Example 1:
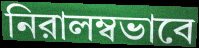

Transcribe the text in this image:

নিরালম্বভাবে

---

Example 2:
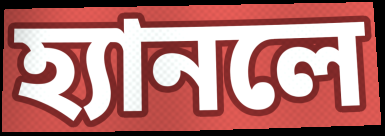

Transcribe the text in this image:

হ্যানলে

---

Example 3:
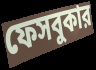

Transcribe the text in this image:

ফেসবুকার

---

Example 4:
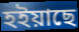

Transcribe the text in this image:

হইয়াছে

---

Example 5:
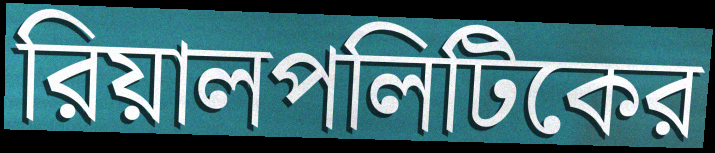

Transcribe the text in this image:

রিয়ালপলিটিকের